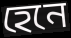
হেনে